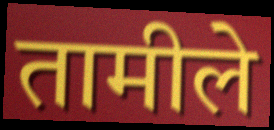
तामीले